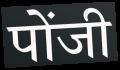
पोंजी